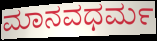
ಮಾನವಧರ್ಮ